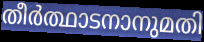
തീർത്ഥാടനാനുമതി